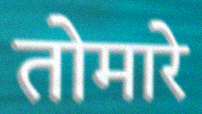
तोमारे